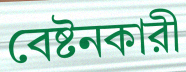
বেষ্টনকারী